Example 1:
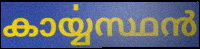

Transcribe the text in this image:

കാൎയ്യസ്ഥൻ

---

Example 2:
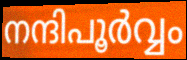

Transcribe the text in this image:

നന്ദിപൂർവ്വം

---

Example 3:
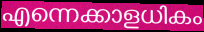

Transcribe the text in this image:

എന്നെക്കാളധികം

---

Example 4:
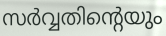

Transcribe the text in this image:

സർവ്വതിന്റെയും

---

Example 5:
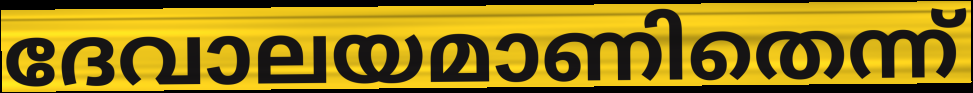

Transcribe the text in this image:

ദേവാലയമാണിതെന്ന്